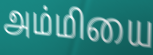
அம்மியை